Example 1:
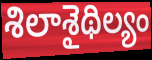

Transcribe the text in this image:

శిలాశైథిల్యం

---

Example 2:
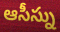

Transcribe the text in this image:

ఆసీస్ను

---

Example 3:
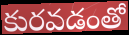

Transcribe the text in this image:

కురవడంతో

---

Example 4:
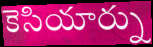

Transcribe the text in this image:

కెసియార్ను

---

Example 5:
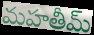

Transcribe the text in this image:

మహతీమ్